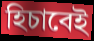
হিচাবেই